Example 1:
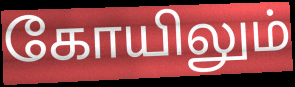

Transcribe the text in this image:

கோயிலும்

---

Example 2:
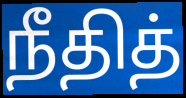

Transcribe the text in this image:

நீதித்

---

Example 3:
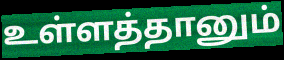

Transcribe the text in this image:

உள்ளத்தானும்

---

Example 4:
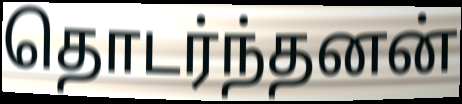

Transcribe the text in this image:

தொடர்ந்தனன்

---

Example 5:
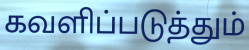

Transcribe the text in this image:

கவளிப்படுத்தும்